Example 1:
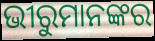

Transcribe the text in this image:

ଭୀରୁମାନଙ୍କର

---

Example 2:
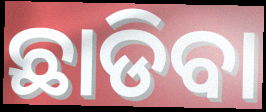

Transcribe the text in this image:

ଛାଡିବା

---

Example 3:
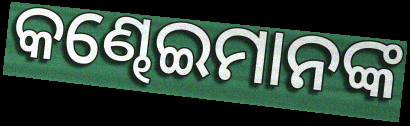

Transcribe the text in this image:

କଣ୍ଢେଇମାନଙ୍କ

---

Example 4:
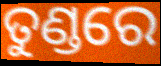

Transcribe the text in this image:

ତୁଣ୍ଡରେ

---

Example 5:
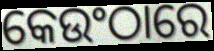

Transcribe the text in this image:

କେଉଂଠାରେ